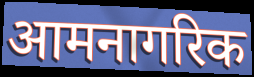
आमनागरिक